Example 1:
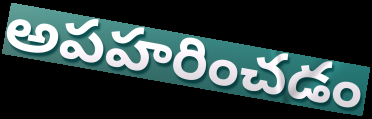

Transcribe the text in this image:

అపహరించడం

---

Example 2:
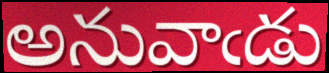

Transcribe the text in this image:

అనువాఁడు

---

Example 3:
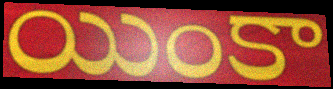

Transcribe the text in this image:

యింకా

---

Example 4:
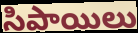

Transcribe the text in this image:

సిపాయిలు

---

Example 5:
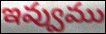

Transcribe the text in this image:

ఇవ్వుము